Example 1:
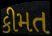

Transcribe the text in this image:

કીમત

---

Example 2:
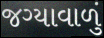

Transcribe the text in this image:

જગ્યાવાળું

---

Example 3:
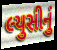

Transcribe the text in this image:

લ્યુસીનું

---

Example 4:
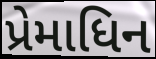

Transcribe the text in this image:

પ્રેમાધિન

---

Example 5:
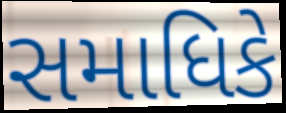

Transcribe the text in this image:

સમાધિકે